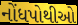
નોંધપોથીઓ